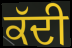
ਕੱਦੀ